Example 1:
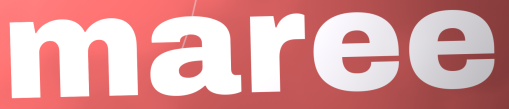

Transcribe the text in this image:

maree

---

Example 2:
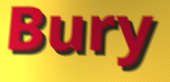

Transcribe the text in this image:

Bury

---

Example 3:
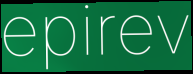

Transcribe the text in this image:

epirev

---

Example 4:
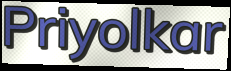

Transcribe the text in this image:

Priyolkar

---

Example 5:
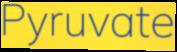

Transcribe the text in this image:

Pyruvate